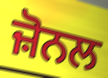
ਜ਼ੋਨਲ